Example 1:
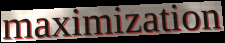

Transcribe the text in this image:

maximization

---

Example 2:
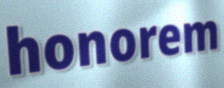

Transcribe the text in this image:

honorem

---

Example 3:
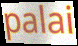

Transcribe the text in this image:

palai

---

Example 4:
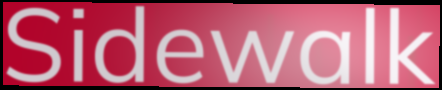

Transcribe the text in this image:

Sidewalk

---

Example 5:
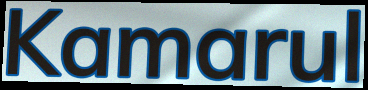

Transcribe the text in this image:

Kamarul